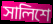
সালিশে